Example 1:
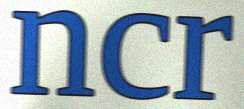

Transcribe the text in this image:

ncr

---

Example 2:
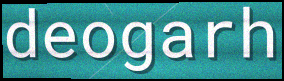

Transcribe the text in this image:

deogarh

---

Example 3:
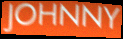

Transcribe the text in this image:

JOHNNY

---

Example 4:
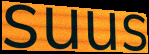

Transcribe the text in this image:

suus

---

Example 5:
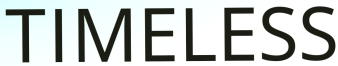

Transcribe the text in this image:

TIMELESS